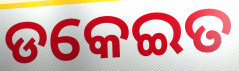
ଡକେଇତ